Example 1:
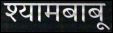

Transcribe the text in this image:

श्यामबाबू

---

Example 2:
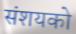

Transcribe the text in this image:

संशयको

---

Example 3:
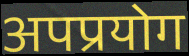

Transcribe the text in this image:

अपप्रयोग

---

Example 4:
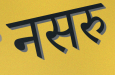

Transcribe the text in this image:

नसरु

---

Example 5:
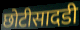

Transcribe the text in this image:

छोटीसादडी